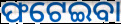
ଫଟେଇବା